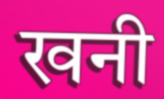
खनी